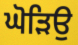
ਘੋੜਿਉ